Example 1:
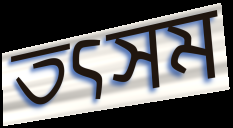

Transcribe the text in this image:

তৎসম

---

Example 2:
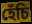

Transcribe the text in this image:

হেঁচি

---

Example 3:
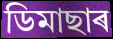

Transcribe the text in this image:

ডিমাছাৰ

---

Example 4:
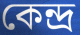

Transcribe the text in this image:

কেন্দ্ৰ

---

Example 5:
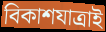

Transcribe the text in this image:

বিকাশযাত্ৰাই